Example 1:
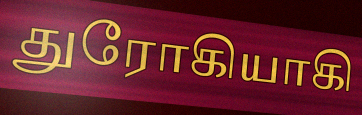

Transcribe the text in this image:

துரோகியாகி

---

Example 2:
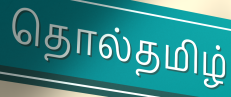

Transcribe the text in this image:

தொல்தமிழ்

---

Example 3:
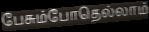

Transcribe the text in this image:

பேசும்போதெல்லாம்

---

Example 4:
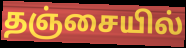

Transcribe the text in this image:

தஞ்சையில்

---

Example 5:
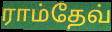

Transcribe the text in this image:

ராம்தேவ்